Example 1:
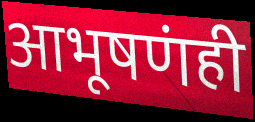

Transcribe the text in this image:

आभूषणंही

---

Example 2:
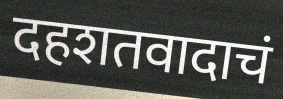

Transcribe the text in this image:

दहशतवादाचं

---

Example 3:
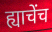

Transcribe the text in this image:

ह्याचेंच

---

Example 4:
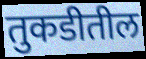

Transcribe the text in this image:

तुकडीतील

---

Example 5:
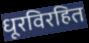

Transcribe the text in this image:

धूरविरहित